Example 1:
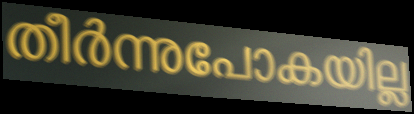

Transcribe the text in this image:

തീർന്നുപോകയില്ല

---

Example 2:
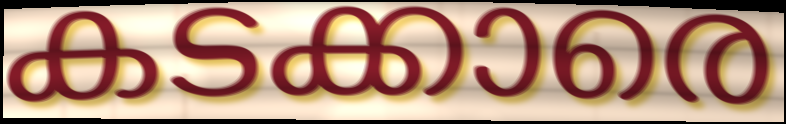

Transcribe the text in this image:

കടക്കാരെ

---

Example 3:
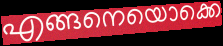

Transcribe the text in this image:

എങ്ങനെയൊക്കെ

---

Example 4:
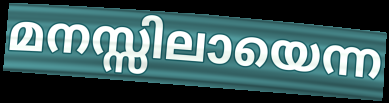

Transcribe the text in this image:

മനസ്സിലായെന്ന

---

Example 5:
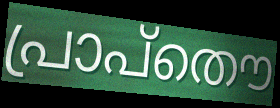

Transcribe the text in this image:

പ്രാപ്തൌ